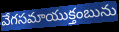
వేగసమాయుక్తంబును